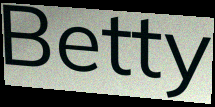
Betty